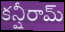
కన్షీరామ్